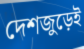
দেশজুড়েই